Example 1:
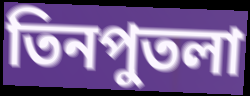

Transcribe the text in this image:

তিনপুতলা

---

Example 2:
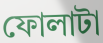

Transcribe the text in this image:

ফোলাটা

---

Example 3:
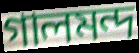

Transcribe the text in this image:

গালমন্দ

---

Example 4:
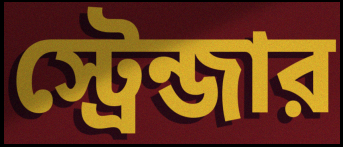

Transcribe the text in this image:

স্ট্রেন্জার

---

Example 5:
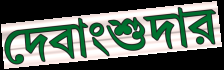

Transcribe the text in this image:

দেবাংশুদার